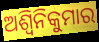
ଅଶ୍ୱିନିକୁମାର